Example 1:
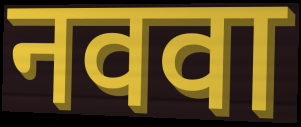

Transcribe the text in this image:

नववा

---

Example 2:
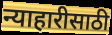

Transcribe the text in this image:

न्याहारीसाठी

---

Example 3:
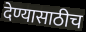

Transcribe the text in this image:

देण्यासाठीच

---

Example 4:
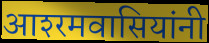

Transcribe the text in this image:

आश्रमवासियांनी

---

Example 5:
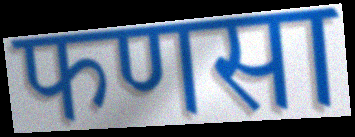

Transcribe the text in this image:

फणसा